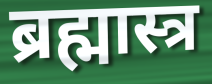
ब्रह्मास्त्र